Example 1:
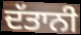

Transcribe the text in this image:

ਦੱਤਾਨੀ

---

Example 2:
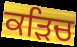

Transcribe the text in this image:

ਕੜਿਚ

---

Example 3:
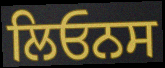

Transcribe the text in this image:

ਲਿਓਨਸ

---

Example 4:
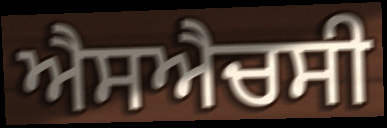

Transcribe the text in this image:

ਐਸਐਚਸੀ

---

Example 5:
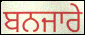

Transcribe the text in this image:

ਬਨਜਾਰੇ